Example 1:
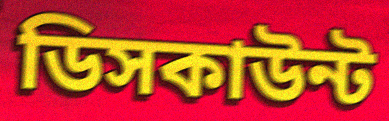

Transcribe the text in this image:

ডিসকাউন্ট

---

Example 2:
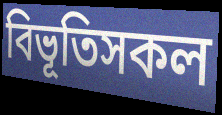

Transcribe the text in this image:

বিভূতিসকল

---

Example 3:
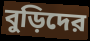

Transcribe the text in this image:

বুড়িদের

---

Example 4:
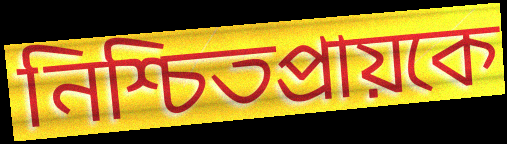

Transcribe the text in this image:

নিশ্চিতপ্রায়কে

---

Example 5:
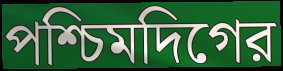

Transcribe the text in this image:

পশ্চিমদিগের